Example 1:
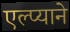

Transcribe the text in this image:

एल्प्याने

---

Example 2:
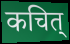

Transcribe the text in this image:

कचित्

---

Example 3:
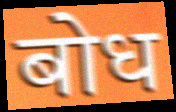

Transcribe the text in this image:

बोध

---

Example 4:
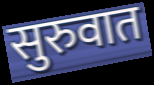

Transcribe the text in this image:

सुरुवात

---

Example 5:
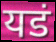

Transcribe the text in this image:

यडं